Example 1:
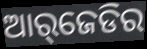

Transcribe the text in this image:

ଆର୍‌ଜେଡିର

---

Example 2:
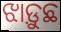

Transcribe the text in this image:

ଝାଡ଼ୁଛ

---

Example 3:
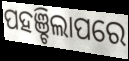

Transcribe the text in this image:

ପହଞ୍ଚିଲାପରେ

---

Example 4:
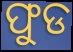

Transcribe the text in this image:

ଫୁଡ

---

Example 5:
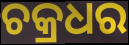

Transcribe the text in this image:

ଚକ୍ରଧର